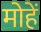
मोहें